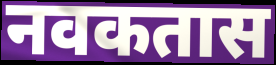
नवकतास